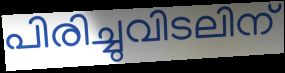
പിരിച്ചുവിടലിന്